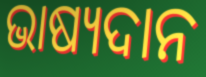
ଭାଷ୍ୟଦାନ